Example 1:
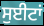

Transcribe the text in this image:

ਸੁਈਟਾਂ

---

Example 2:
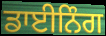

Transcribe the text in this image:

ਡਾਈਨਿੰਗ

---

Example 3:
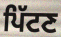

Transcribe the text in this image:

ਪਿੱਟਣ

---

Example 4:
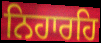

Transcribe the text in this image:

ਨਿਹਾਰਹਿ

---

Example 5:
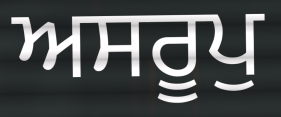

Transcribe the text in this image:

ਅਸਰੂਪੁ